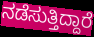
ನಡೆಸುತ್ತಿದ್ದಾರೆ